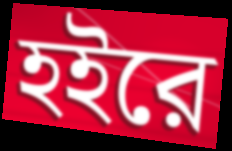
হইরে